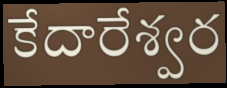
కేదారేశ్వర